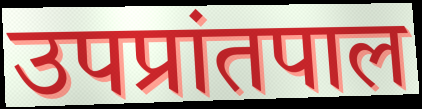
उपप्रांतपाल